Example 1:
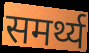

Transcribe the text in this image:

समर्थ्य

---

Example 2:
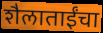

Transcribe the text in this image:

शैलाताईंचा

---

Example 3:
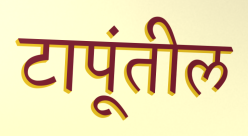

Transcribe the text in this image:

टापूंतील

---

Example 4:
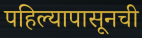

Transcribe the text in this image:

पहिल्यापासूनची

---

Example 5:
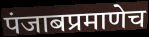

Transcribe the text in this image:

पंजाबप्रमाणेच